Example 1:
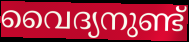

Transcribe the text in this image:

വൈദ്യനുണ്ട്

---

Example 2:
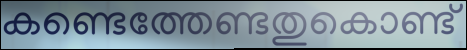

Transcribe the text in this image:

കണ്ടെത്തേണ്ടതുകൊണ്ട്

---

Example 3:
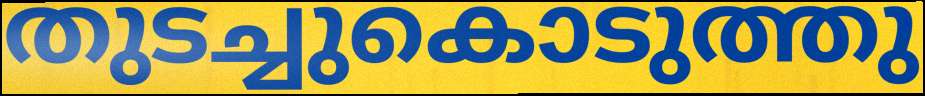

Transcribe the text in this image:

തുടച്ചുകൊടുത്തു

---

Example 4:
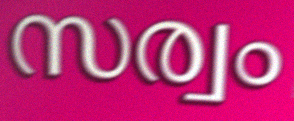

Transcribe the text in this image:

സര്വം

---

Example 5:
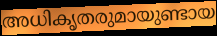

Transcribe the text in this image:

അധികൃതരുമായുണ്ടായ